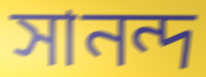
সানন্দ